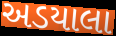
અડયાલા